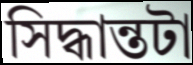
সিদ্ধান্তটা